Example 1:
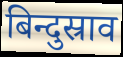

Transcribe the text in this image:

बिन्दुस्राव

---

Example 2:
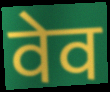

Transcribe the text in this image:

वेव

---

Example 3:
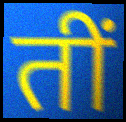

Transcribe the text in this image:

तीं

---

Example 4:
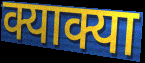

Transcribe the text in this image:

क्याक्या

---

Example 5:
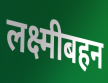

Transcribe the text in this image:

लक्ष्मीबहन